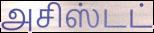
அசிஸ்டட்